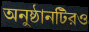
অনুষ্ঠানটিরও